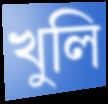
খুলি